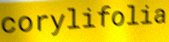
corylifolia